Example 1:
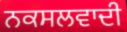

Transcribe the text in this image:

ਨਕਸਲਵਾਦੀ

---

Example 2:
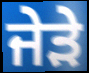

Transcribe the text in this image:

ਜੇੜੇ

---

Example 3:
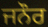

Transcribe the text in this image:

ਜਨੌਰ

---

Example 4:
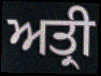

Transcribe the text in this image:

ਅਤ੍ਰੀ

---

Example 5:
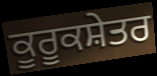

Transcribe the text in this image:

ਕੂਰੂਕਸ਼ੇਤਰ